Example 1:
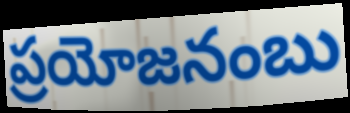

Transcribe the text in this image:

ప్రయోజనంబు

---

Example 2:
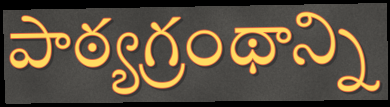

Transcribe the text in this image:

పాఠ్యగ్రంథాన్ని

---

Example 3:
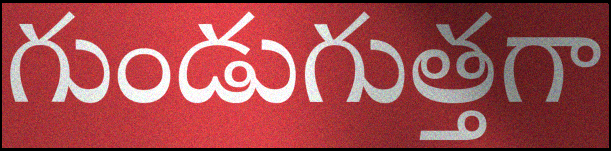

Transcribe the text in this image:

గుండుగుత్తగా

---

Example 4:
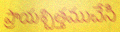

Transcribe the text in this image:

ప్రాయశ్చిత్తముచేసి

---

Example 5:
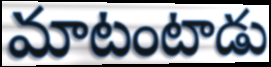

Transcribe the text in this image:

మాటంటాడు